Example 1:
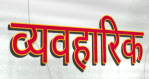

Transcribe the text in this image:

व्यवहारिक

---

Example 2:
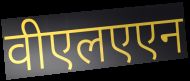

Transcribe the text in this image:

वीएलएएन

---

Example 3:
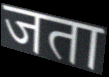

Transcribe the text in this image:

जता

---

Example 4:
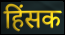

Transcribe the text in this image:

हिंसक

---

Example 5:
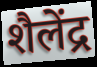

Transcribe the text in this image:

शैलेंद्र